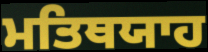
ਮਤਿਥਯਾਹ